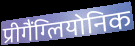
प्रीगैंग्लियोनिक